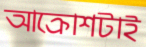
আক্রোশটাই